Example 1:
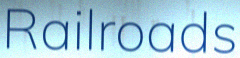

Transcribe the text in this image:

Railroads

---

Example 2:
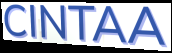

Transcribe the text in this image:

CINTAA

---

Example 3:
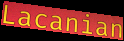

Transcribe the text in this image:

Lacanian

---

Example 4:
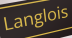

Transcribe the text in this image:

Langlois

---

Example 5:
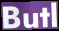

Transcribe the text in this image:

Butl